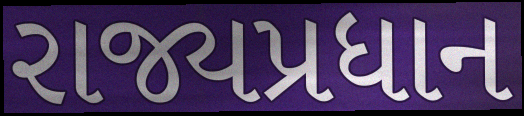
રાજ્યપ્રધાન